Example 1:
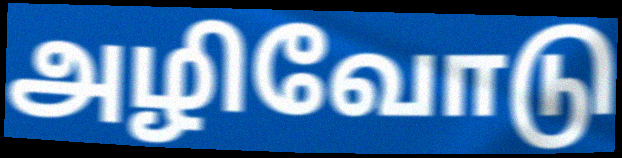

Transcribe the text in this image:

அழிவோடு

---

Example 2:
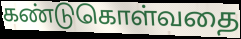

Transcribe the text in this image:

கண்டுகொள்வதை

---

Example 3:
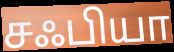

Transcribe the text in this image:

சஃபியா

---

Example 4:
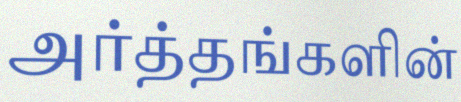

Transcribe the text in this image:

அர்த்தங்களின்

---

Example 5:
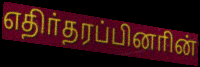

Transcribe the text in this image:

எதிர்தரப்பினரின்